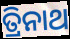
ତ୍ରିନାଥ